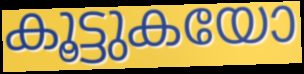
കൂട്ടുകയോ